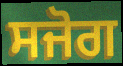
ਸਜੋਗ